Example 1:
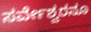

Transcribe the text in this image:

ಸರ್ವೇಶ್ವರನೂ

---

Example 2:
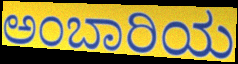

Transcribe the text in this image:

ಅಂಬಾರಿಯ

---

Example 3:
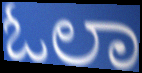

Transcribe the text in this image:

ಓಲಾ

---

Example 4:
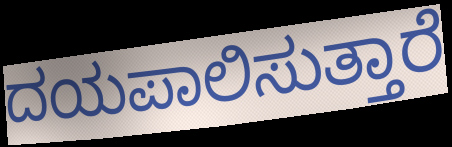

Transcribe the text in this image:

ದಯಪಾಲಿಸುತ್ತಾರೆ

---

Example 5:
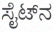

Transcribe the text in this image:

ಸೈಟ್‌ನ